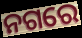
ନଗରେ